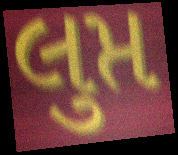
લુપ્ત